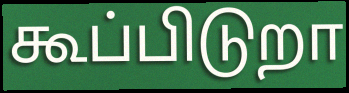
கூப்பிடுறா